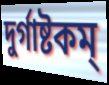
দুর্গাষ্টকম্